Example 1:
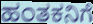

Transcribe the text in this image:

ಹಂತಕನಿಗೆ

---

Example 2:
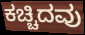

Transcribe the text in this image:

ಕಚ್ಚಿದವು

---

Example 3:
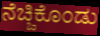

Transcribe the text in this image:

ನೆಚ್ಚಿಕೊಂಡು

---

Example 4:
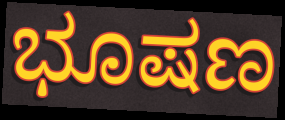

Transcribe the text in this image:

ಭೂಷಣ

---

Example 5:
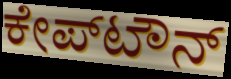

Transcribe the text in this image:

ಕೇಪ್‌ಟೌನ್